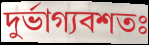
দুৰ্ভাগ্যবশতঃ